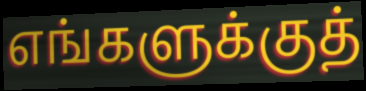
எங்களுக்குத்